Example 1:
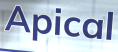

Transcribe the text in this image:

Apical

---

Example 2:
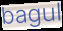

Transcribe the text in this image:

bagul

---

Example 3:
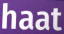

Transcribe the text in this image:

haat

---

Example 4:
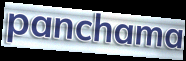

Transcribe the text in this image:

panchama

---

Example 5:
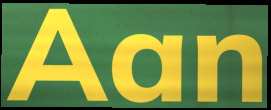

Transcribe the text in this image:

Aan